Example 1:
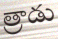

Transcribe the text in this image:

త్రాడు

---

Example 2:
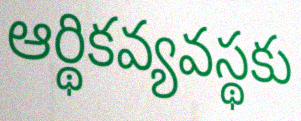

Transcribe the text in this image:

ఆర్థికవ్యవస్థకు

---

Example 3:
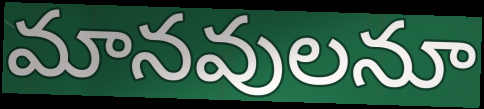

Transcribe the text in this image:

మానవులనూ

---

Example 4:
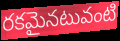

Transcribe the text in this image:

రకమైనటువంటి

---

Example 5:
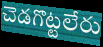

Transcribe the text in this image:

చెడగొట్టలేరు